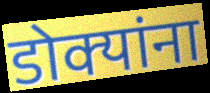
डोक्यांना